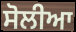
ਸੋਲੀਆ